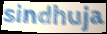
sindhuja